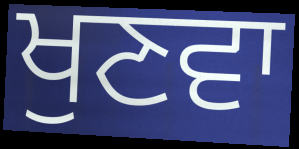
ਖੁਣਵਾ